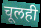
चूलही